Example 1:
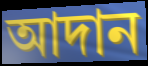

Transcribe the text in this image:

আদান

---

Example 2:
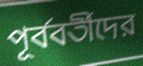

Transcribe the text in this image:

পূর্ববর্তীদের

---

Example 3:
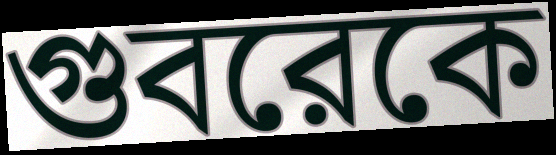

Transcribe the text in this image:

গুবরেকে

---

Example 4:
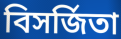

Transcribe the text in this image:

বিসর্জিতা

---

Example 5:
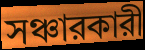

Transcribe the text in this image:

সঞ্চারকারী